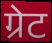
ग्रेट